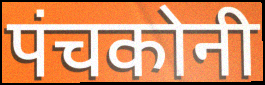
पंचकोनी